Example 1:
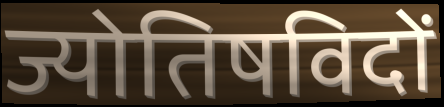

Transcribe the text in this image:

ज्योतिषविदों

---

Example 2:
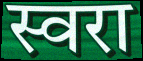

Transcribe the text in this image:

स्‍वरा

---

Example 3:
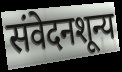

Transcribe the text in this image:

संवेदनशून्य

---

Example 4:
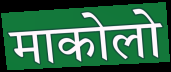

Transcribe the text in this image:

माकोलो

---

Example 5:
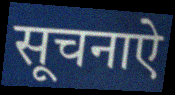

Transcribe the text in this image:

सूचनाऐ